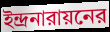
ইন্দ্রনারায়নের